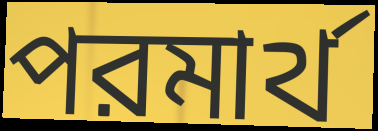
পরমার্থ